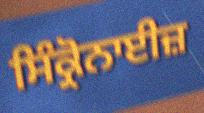
ਸਿੰਕ੍ਰੋਨਾਈਜ਼